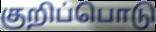
குறிப்பொடு